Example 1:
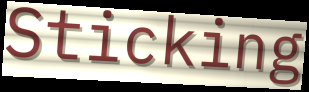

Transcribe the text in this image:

Sticking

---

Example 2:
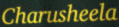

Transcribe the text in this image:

Charusheela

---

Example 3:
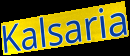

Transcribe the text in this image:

Kalsaria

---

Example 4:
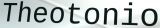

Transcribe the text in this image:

Theotonio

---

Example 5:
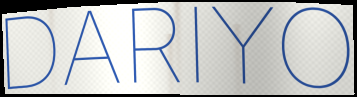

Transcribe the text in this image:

DARIYO